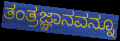
ತಂತ್ರಜ್ಞಾನವನ್ನೂ